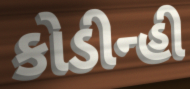
કોડીન્હી